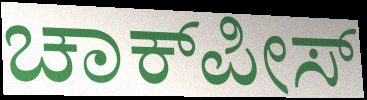
ಚಾಕ್‌ಪೀಸ್